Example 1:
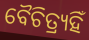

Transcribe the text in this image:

ବୈଚିତ୍ର୍ୟହିଁ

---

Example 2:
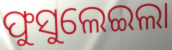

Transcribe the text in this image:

ଫୁସୁଲେଇଲା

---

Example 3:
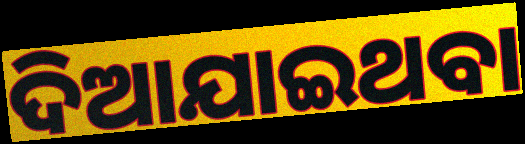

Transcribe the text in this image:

ଦିଆଯାଇଥବା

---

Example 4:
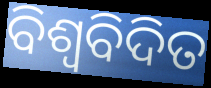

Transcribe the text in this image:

ବିଶ୍ବବିଦିତ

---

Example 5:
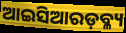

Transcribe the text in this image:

ଆଇସିଆରଡ଼ବ୍ଳ୍ୟ